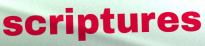
scriptures